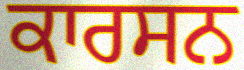
ਕਾਰਸਨ